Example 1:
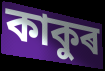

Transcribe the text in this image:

কাকুৰ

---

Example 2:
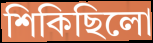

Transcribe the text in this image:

শিকিছিলো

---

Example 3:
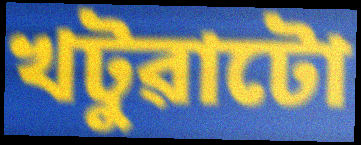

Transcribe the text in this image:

খটুৱাটো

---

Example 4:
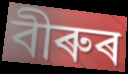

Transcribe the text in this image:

বীৰুৰ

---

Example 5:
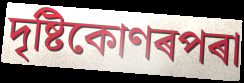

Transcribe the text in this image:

দৃষ্টিকোণৰপৰা